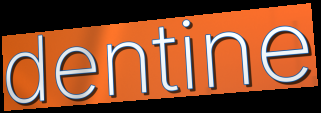
dentine